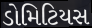
ડોમિટિયસ